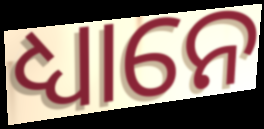
ଧ୍ୟାନେ